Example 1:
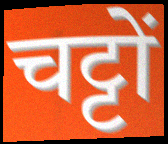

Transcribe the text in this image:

चट्टों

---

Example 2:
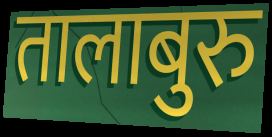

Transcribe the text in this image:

तालाबुरु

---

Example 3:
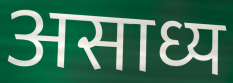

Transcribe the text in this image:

असाध्य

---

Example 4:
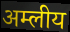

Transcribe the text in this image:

अम्लीय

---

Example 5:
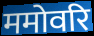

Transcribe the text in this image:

ममोवरि